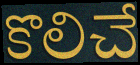
కొలిచే